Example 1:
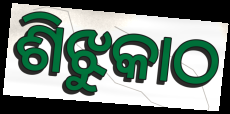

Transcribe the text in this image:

ଶିଝୁକାଠ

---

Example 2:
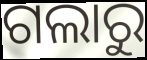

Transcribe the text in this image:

ଗଲାରୁ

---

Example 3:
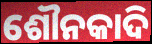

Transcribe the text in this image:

ଶୌନକାଦି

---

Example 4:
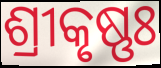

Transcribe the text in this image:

ଶ୍ରୀକୃଷ୍ଣଃ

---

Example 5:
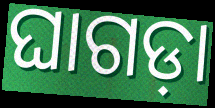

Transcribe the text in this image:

ଘାଗଡ଼ା